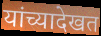
यांच्यादेखत